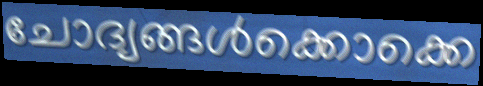
ചോദ്യങ്ങൾക്കൊക്കെ